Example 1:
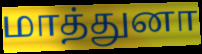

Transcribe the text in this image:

மாத்துனா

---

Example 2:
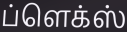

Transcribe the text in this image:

ப்ளெக்ஸ்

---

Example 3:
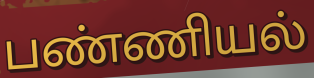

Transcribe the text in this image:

பண்ணியல்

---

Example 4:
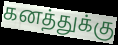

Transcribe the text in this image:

கனத்துக்கு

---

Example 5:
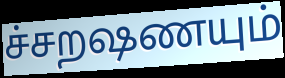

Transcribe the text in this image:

ச்சறஷணயும்